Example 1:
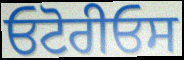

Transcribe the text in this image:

ਓਟੋਰੀਓਸ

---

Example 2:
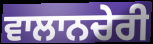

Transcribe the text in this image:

ਵਾਲਾਨਚੇਰੀ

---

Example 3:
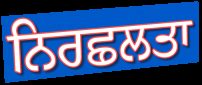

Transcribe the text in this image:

ਨਿਰਛਲਤਾ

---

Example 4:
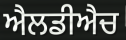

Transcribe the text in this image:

ਐਲਡੀਐਚ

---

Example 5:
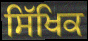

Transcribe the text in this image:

ਸਿੱਖਿਕ